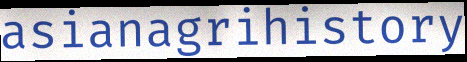
asianagrihistory